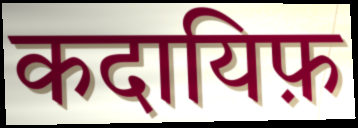
कदायिफ़